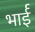
भार्ई